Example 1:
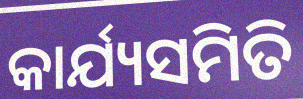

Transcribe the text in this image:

କାର୍ଯ୍ୟସମିତି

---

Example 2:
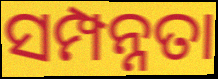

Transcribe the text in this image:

ସମ୍ପନ୍ନତା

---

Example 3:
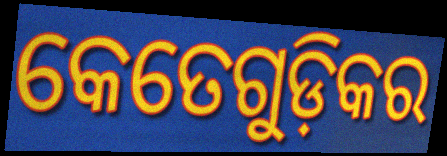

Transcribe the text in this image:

କେତେଗୁଡ଼ିକର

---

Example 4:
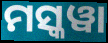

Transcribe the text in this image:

ମସ୍କୱା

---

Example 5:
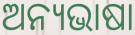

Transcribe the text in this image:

ଅନ୍ୟଭାଷା